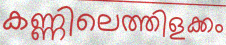
കണ്ണിലെത്തിളക്കം